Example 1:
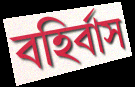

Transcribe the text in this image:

বহির্বাস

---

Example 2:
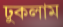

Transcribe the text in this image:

ঢুকলাম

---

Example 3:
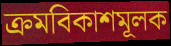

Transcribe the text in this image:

ক্রমবিকাশমূলক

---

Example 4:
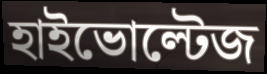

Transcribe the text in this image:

হাইভোল্টেজ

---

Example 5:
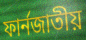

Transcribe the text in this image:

ফার্নজাতীয়